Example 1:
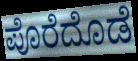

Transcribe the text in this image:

ಪೊರೆದೊಡೆ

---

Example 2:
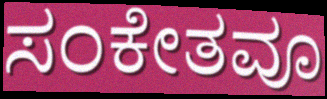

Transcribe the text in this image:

ಸಂಕೇತವೂ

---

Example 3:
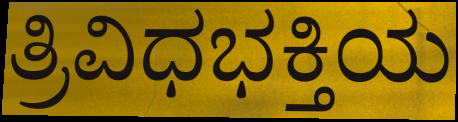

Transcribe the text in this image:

ತ್ರಿವಿಧಭಕ್ತಿಯ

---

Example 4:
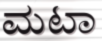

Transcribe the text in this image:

ಮಟಾ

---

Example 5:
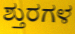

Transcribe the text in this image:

ಶ್ತುರಗಳ